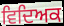
ਵਿਦਿਅਕ